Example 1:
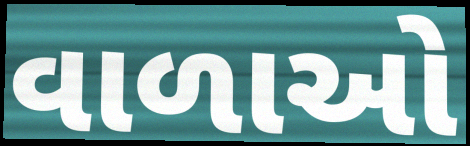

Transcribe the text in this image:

વાળાઓ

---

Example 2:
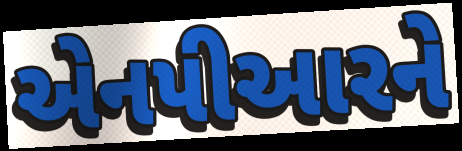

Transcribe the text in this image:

એનપીઆરને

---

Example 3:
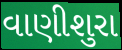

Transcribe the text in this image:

વાણીશુરા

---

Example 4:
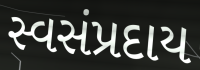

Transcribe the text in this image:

સ્વસંપ્રદાય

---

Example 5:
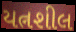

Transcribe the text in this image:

યત્નશીલ